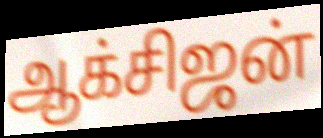
ஆக்சிஜன்